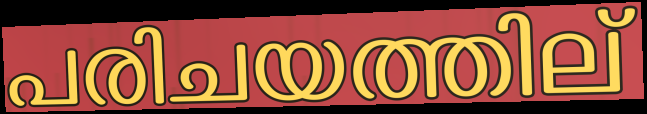
പരിചയത്തില്